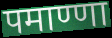
पमाण्णा